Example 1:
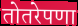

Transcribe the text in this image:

तोतरेपणा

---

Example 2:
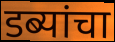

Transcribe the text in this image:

डब्यांचा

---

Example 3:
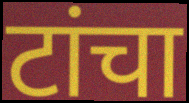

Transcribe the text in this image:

टांचा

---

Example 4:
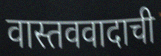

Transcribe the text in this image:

वास्तववादाची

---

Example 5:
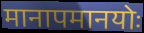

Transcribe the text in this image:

मानापमानयोः